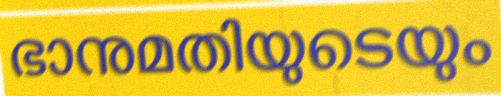
ഭാനുമതിയുടെയും